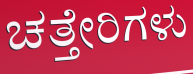
ಚತ್ತೇರಿಗಳು